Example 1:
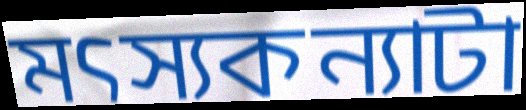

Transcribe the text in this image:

মৎস্যকন্যাটা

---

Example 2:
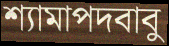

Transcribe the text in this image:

শ্যামাপদবাবু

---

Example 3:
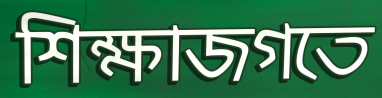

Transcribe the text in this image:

শিক্ষাজগতে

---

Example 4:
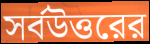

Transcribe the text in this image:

সর্বউত্তরের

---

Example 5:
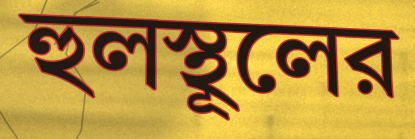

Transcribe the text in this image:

হুলস্থূলের